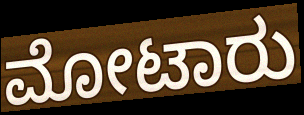
ಮೋಟಾರು